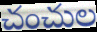
చంచుల